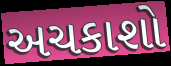
અચકાશો